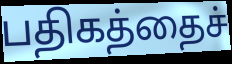
பதிகத்தைச்